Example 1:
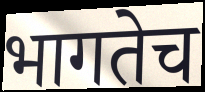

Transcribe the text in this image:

भागतेच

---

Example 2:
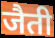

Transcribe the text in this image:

जैती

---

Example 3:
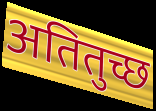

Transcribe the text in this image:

अतितुच्छ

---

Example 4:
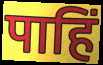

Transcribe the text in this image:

पाहिं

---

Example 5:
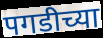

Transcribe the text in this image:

पगडीच्या